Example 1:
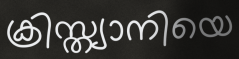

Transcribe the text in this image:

ക്രിസ്ത്യാനിയെ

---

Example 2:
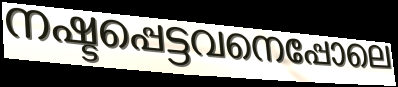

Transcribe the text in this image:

നഷ്ടപ്പെട്ടവനെപ്പോലെ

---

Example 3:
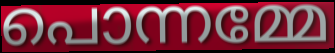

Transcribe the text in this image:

പൊന്നമ്മേ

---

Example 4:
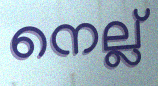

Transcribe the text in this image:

നെല്ല്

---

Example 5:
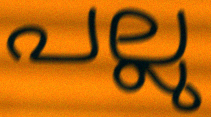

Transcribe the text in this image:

പല്ലു